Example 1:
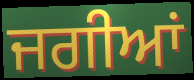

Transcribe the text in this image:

ਜਗੀਆਂ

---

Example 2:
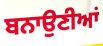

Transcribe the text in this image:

ਬਨਾਉਣੀਆਂ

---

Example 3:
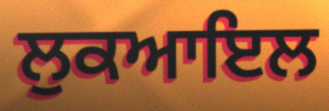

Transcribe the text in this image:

ਲੁਕਆਇਲ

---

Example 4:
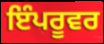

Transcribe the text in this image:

ਇੰਪਰੂਵਰ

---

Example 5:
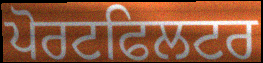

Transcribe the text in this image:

ਪੋਰਟਫਿਲਟਰ